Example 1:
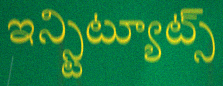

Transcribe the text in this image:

ఇన్స్టిట్యూట్స్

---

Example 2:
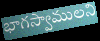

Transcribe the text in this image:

భాగస్వాములని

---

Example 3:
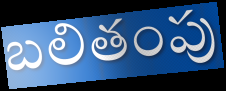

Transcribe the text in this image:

బలితంపు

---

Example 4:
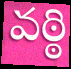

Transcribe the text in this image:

వఠ్ఠి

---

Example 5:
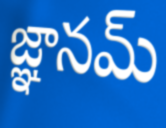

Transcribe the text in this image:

జ్ఞానమ్